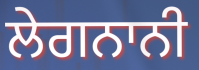
ਲੇਗਨਾਨੀ